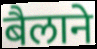
बैलाने